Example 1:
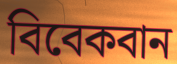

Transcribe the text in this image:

বিবেকবান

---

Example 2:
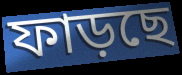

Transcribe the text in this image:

ফাড়ছে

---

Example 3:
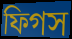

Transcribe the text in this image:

ফিগস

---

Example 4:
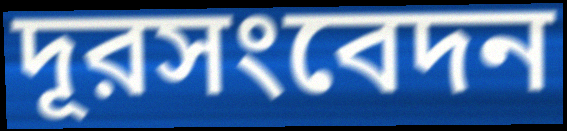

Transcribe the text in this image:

দূরসংবেদন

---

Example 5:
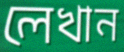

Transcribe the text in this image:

লেখান